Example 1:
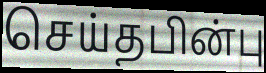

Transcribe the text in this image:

செய்தபின்பு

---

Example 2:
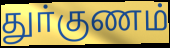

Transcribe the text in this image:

துர்குணம்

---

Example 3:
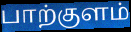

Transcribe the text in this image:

பாற்குளம்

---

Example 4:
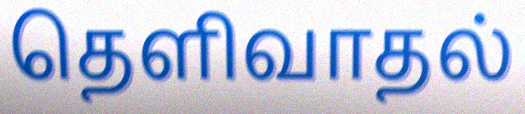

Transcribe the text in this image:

தெளிவாதல்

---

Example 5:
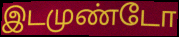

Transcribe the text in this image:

இடமுண்டோ